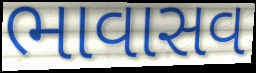
ભાવાસવ